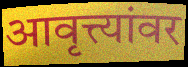
आवृत्त्यांवर